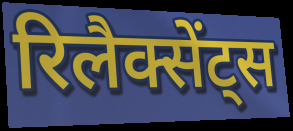
रिलैक्सेंट्स